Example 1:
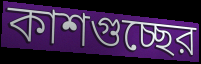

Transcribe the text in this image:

কাশগুচ্ছের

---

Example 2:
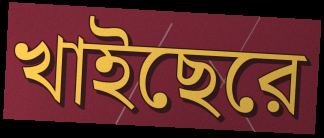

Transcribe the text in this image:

খাইছেরে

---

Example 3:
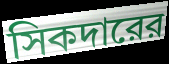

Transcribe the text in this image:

সিকদারের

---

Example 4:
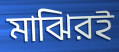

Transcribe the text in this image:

মাঝিরই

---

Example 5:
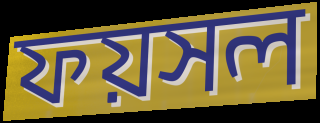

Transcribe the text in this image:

ফয়সল